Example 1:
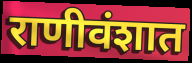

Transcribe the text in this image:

राणीवंशात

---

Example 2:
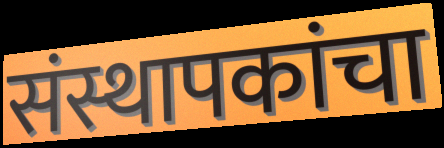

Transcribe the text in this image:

संस्थापकांचा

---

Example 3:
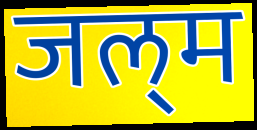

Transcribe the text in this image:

जल्म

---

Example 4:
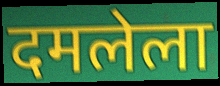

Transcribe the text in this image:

दमलेला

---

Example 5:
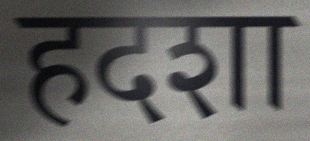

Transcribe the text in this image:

हदशा